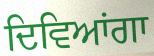
ਦਿਵਿਆਂਗਾ